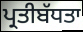
ਪ੍ਰਤੀਬੱਧਤਾ